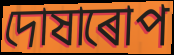
দোষাৰোপ